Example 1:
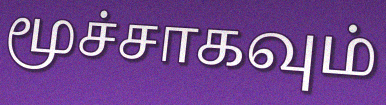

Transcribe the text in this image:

மூச்சாகவும்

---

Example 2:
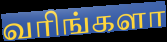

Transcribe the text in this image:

வரிங்களா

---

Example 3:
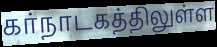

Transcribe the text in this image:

கர்நாடகத்திலுள்ள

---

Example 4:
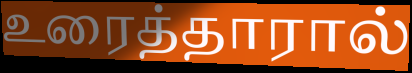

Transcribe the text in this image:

உரைத்தாரால்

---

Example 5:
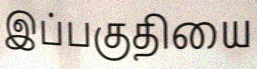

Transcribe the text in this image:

இப்பகுதியை